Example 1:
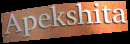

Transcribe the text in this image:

Apekshita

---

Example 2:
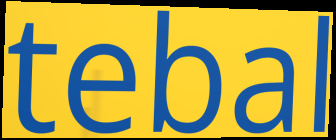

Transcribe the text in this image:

tebal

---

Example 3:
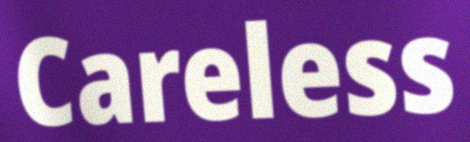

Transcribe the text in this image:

Careless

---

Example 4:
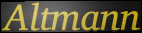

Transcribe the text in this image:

Altmann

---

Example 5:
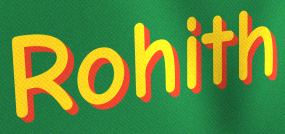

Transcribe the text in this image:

Rohith